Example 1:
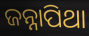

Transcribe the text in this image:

ଜନ୍ନାପିଥା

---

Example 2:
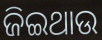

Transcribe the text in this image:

ଜିଇଥାଉ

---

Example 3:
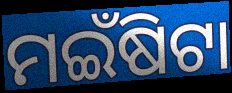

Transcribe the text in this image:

ମଇଁଷିଟା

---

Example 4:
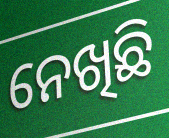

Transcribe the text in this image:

ନେଖିଛି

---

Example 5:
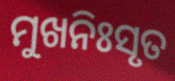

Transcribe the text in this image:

ମୁଖନିଃସୃତ